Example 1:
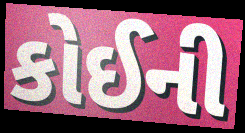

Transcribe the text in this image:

કોઈની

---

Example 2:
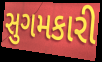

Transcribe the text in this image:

સુગમકારી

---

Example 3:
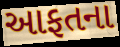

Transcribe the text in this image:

આફતના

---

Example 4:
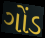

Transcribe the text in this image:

ગોંડ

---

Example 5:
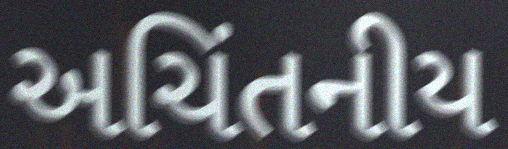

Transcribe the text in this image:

અચિંતનીય